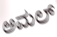
ಅಮಲ್